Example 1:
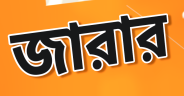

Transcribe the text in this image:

জারার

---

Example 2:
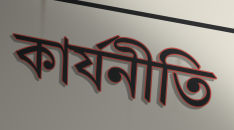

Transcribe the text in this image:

কার্যনীতি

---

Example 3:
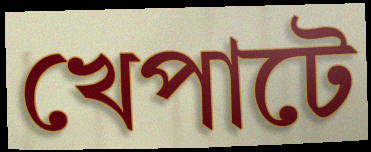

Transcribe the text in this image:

খেপাটে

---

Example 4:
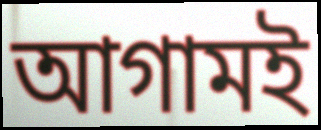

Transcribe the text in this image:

আগামই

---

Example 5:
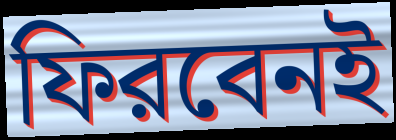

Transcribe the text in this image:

ফিরবেনই